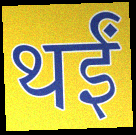
थईं